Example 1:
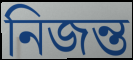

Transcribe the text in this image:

নিজন্ত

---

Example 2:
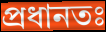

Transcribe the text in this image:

প্ৰধানতঃ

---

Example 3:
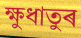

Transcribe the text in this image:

ক্ষুধাতুৰ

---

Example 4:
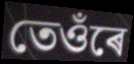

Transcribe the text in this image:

তেওঁৰে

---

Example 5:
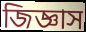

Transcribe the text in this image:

জিজ্ঞাস